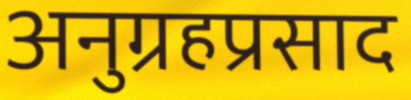
अनुग्रहप्रसाद